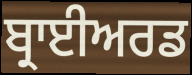
ਬ੍ਰਾਈਅਰਡ